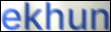
ekhun